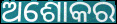
ଅଶୋକର